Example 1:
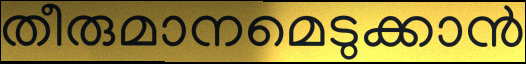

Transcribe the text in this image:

തീരുമാനമെടുക്കാൻ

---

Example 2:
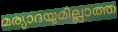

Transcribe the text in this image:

മര്യാദയുമില്ലാത്ത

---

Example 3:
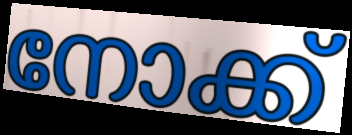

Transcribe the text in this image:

നോക്ക്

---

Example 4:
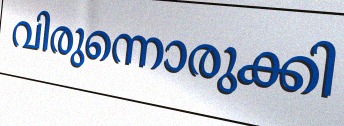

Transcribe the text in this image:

വിരുന്നൊരുക്കി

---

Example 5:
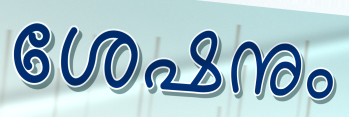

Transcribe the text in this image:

ശേഷനും